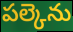
పల్కెను